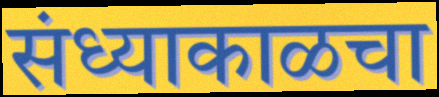
संध्याकाळचा